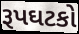
રૂપઘટકો